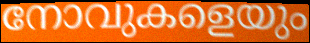
നോവുകളെയും